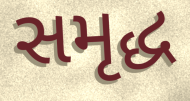
સમૃદ્ધ